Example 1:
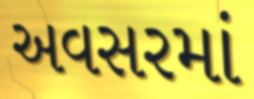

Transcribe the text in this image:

અવસરમાં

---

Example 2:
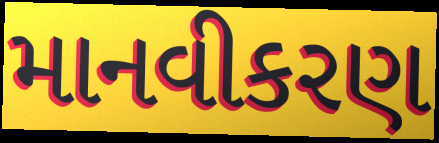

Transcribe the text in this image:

માનવીકરણ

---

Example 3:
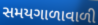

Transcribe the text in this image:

સમયગાળાવાળી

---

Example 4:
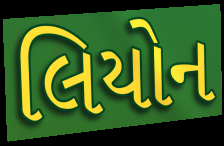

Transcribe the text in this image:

લિયોન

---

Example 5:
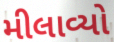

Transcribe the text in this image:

મીલાવ્યો